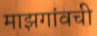
माझगांवची